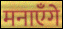
मनाएँगे